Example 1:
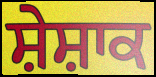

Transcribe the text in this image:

ਸ਼ੇਸ਼ਾਕ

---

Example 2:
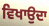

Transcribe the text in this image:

ਵਿਖਾਉਦਾ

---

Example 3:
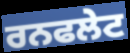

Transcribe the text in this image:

ਰਨਫਲੇਟ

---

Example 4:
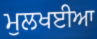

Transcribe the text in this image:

ਮੁਲਖਈਆ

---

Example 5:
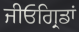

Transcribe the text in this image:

ਜੀਓਗ੍ਰਿਡਾਂ